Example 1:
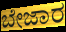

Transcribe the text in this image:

ಬೇಜಾರ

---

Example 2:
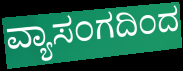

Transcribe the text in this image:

ವ್ಯಾಸಂಗದಿಂದ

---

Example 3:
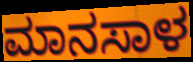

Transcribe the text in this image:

ಮಾನಸಾಳ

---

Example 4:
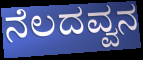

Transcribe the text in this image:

ನೆಲದವ್ವನ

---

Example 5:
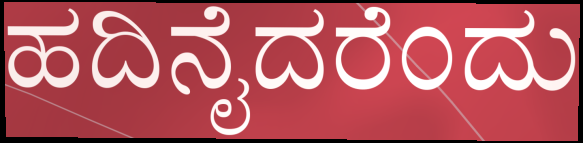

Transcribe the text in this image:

ಹದಿನೈದರೆಂದು